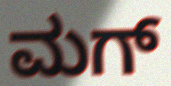
ಮಗ್